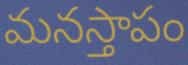
మనస్తాపం